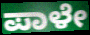
ಪಾಳೇ